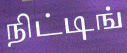
நிட்டிங்